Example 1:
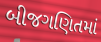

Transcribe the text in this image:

બીજગણિતમાં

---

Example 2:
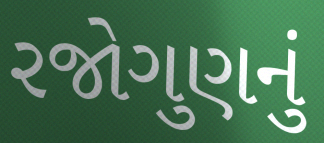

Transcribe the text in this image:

રજોગુણનું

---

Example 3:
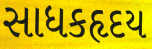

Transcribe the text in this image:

સાધકહૃદય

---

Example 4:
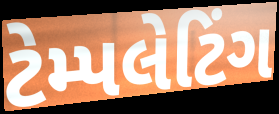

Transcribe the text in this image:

ટેમ્પલેટિંગ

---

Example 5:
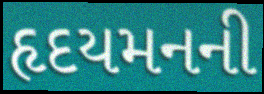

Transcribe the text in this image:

હૃદયમનની